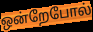
ஒன்றேபோல்